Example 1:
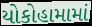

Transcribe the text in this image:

યોકોહામામાં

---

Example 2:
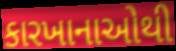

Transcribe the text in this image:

કારખાનાઓથી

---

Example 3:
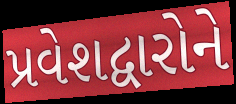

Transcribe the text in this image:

પ્રવેશદ્વારોને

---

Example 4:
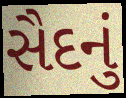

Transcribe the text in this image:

સૈદનું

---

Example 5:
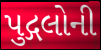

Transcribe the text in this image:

પુદ્ગલોની